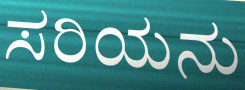
ಸರಿಯನು